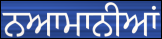
ਨਆਮਾਨੀਆਂ